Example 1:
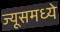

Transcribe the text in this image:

ज्यूसमध्ये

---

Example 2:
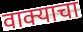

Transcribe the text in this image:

वाक्याचा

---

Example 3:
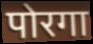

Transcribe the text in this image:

पोरगा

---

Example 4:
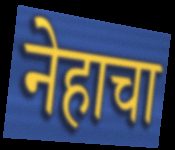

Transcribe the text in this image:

नेहाचा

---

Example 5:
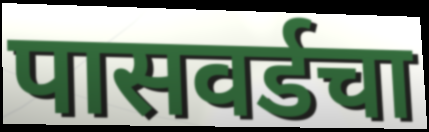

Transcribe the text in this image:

पासवर्डचा